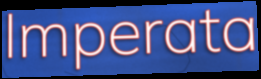
Imperata